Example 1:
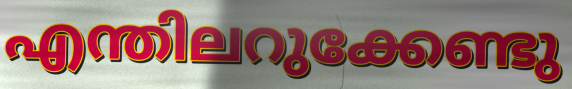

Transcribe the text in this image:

എന്തിലറുക്കേണ്ടു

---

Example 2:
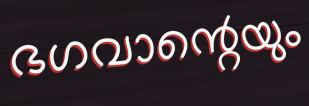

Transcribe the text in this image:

ഭഗവാന്റെയും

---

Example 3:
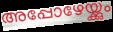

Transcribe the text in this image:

അപ്പോഴേയ്ക്കും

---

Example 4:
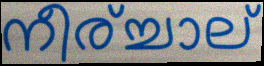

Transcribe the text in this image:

നീര്ച്ചാല്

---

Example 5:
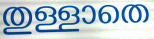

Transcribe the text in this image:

തുള്ളാതെ